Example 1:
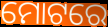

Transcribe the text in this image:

ମୋଟରେ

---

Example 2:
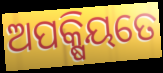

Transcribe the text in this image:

ଅପକ୍ଷିୟତେ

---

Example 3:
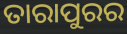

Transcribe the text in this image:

ତାରାପୁରର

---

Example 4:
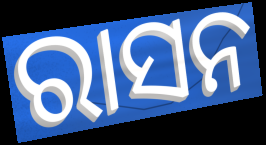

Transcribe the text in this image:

ରାସନ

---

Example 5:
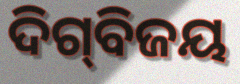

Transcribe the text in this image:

ଦିଗ୍‌ବିଜୟ